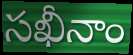
సఖీనాం